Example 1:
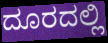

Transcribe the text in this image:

ದೂರದಲ್ಲಿ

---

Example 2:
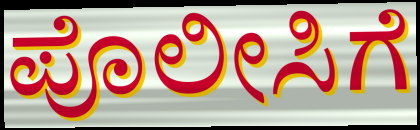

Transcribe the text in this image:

ಪೊಲೀಸಿಗೆ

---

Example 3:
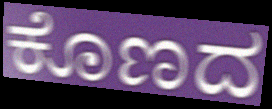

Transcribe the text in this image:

ಕೊಣದ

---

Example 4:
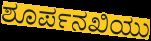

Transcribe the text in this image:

ಶೂರ್ಪನಖಿಯು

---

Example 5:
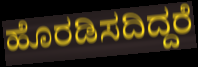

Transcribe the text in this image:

ಹೊರಡಿಸದಿದ್ದರೆ